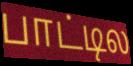
பாட்டில